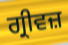
ਗ੍ਰੀਵਜ਼